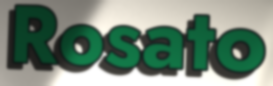
Rosato